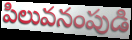
పిలువనంపుడి